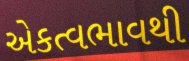
એકત્વભાવથી